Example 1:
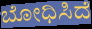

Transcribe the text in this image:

ಬೋಧಿಸಿದೆ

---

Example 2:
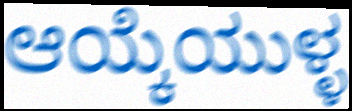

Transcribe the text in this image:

ಆಯ್ಕೆಯುಳ್ಳ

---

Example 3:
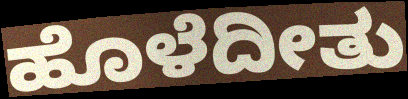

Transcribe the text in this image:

ಹೊಳೆದೀತು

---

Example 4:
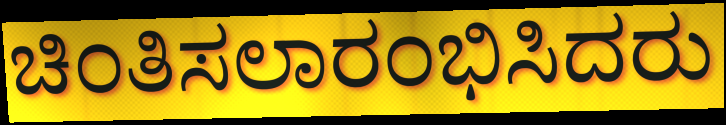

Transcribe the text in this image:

ಚಿಂತಿಸಲಾರಂಭಿಸಿದರು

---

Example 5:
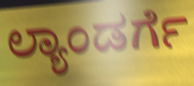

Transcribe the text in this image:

ಲ್ಯಾಂಡರ್ಗೆ